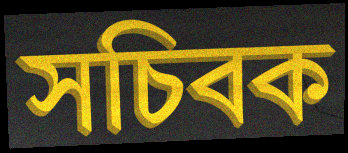
সচিবক